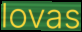
lovas